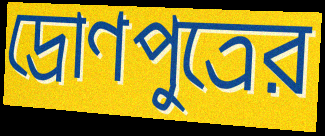
দ্রোণপুত্রের